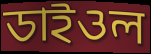
ডাইওল